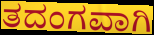
ತದಂಗವಾಗಿ